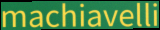
machiavelli